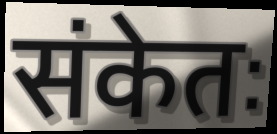
संकेतः